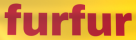
furfur